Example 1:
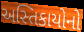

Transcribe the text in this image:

અસ્તિકાયોનો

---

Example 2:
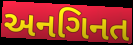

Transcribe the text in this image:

અનગિનત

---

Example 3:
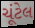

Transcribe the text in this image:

ચૂંટેલ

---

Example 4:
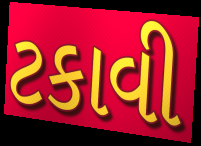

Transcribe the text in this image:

ટકાવી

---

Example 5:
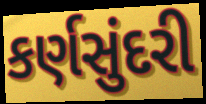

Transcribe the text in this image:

કર્ણસુંદરી